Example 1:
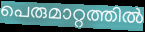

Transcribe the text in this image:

പെരുമാറ്റത്തിൽ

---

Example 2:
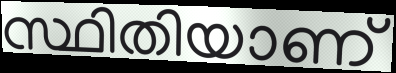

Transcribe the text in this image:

സ്ഥിതിയാണ്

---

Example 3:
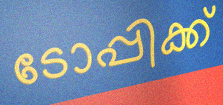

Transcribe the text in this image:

ടോപ്പിക്ക്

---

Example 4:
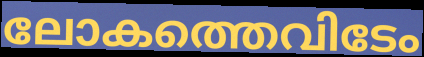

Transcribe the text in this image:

ലോകത്തെവിടേം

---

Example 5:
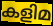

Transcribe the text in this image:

കളിമ